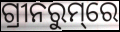
ଗ୍ରୀନରୁମ୍‌ରେ